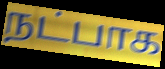
நட்பாக